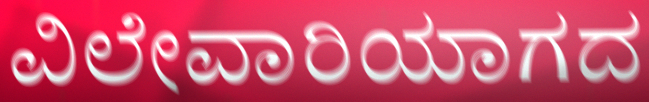
ವಿಲೇವಾರಿಯಾಗದ